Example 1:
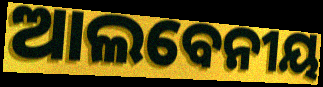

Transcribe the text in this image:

ଆଲବେନୀୟ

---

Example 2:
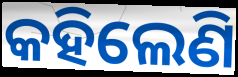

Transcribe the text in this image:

କହିଲେଣି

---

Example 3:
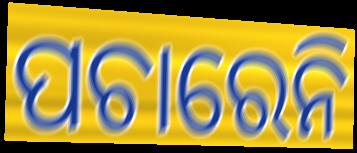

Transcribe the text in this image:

ପଚାରେନି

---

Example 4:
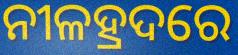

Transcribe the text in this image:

ନୀଳହ୍ରଦରେ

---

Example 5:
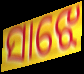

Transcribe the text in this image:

ସାଝେ